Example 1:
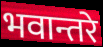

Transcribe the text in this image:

भवान्तरे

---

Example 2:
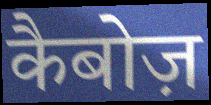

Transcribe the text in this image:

कैबोज़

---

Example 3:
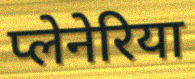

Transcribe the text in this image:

प्लेनेरिया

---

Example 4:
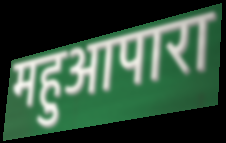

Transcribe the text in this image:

महुआपारा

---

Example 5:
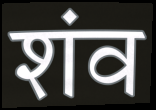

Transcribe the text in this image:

शंव